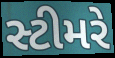
સ્ટીમરે